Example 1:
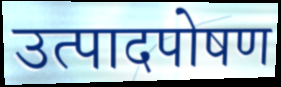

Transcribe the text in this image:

उत्पादपोषण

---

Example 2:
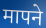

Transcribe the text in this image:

मापने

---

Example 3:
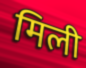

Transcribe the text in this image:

मिली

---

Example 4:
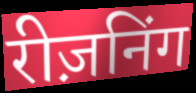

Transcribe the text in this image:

रीज़निंग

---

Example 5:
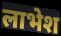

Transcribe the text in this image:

लाभेश